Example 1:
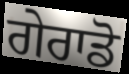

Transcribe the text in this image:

ਗੇਰਾਡੋ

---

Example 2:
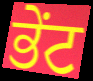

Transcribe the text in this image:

ਭੇਂਟ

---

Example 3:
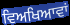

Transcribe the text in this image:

ਵਿਅਖਿਆਵਾਂ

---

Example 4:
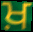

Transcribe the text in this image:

ਖ਼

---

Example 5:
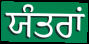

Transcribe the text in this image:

ਯੰਤਰਾਂ